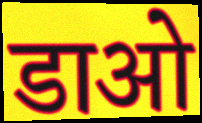
डाओ